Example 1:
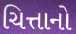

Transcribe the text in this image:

ચિત્તાનો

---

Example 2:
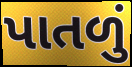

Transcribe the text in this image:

પાતળું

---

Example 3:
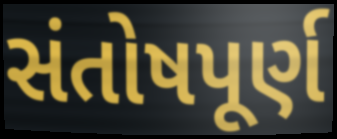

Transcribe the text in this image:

સંતોષપૂર્ણ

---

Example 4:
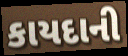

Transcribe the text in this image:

કાયદાની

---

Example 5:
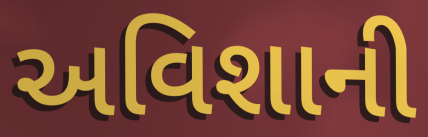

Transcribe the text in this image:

અવિશાની